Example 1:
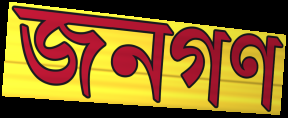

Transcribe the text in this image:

জনগণ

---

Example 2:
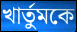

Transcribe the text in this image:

খার্তুমকে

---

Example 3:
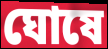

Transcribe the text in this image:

ঘোষে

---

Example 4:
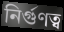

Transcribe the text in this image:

নির্গুণত্ব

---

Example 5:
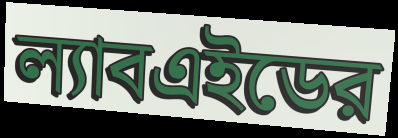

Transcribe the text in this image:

ল্যাবএইডের